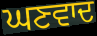
ਘਣਵਾਦ